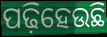
ପଢ଼ିହେଉଛି